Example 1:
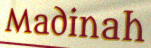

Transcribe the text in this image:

Madinah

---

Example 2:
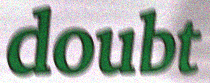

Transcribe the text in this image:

doubt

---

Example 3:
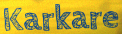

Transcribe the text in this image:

Karkare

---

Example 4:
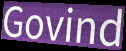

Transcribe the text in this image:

Govind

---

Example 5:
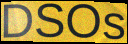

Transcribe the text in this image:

DSOs